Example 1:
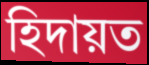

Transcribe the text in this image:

হিদায়ত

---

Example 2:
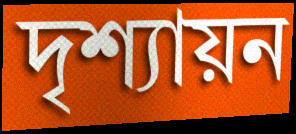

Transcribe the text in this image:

দৃশ্যায়ন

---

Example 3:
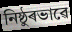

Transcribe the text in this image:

নিষ্ঠুৰভাৱে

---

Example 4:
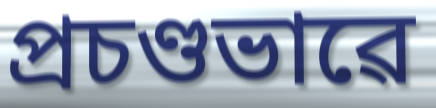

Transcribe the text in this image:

প্ৰচণ্ডভাৱে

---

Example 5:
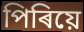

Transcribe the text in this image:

পিৰিয়ে